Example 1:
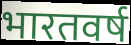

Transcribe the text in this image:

भारतवर्ष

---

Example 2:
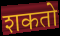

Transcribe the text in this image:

शकतो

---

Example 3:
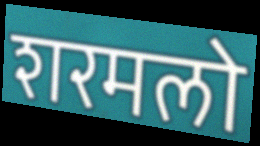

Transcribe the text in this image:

शरमलो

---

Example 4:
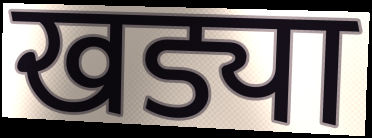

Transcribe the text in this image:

खड्या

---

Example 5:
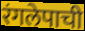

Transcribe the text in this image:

रंगलेपाची